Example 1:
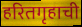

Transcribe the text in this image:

हरितगृहाची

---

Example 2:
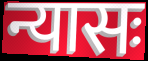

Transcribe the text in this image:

न्यासः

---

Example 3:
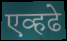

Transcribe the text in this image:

एव्हढे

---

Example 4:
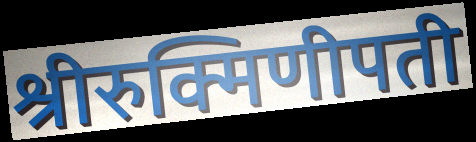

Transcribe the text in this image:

श्रीरुक्मिणीपती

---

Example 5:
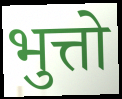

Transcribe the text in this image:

भुत्तो